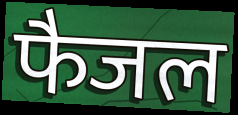
फैजल